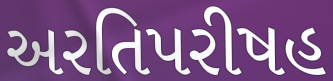
અરતિપરીષહ